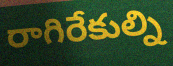
రాగిరేకుల్ని